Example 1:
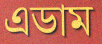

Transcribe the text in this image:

এডাম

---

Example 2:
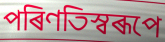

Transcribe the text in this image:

পৰিণতিস্বৰূপে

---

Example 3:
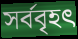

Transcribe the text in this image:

সৰ্ববৃহৎ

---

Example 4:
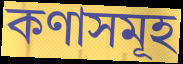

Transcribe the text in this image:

কণাসমূহ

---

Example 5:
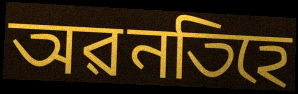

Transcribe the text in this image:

অৱনতিহে